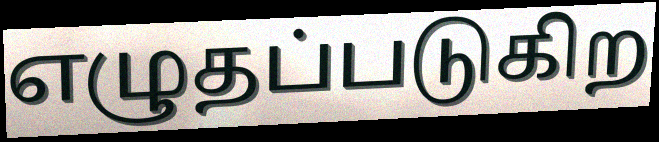
எழுதப்படுகிற